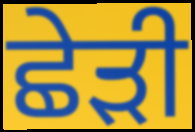
ਛੇੜੀ